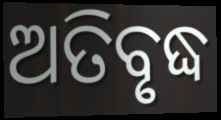
ଅତିବୃଦ୍ଧ